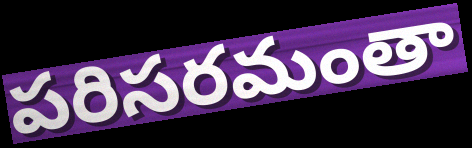
పరిసరమంతా